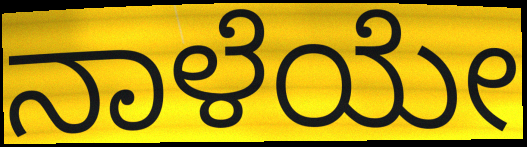
ನಾಳೆಯೇ